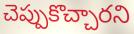
చెప్పుకొచ్చారని